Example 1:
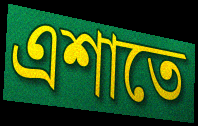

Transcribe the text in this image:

এশাতে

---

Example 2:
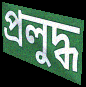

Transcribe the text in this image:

প্রলুদ্ধ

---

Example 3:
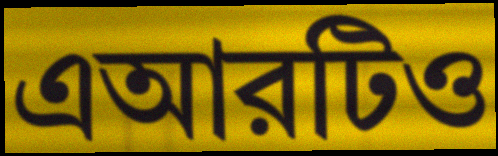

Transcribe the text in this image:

এআরটিও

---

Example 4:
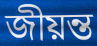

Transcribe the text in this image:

জীয়ন্ত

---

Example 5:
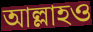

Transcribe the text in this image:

আল্লাহও